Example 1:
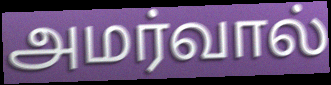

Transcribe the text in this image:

அமர்வால்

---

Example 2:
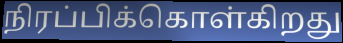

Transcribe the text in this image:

நிரப்பிக்கொள்கிறது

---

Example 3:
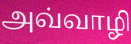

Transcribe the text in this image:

அவ்வாழி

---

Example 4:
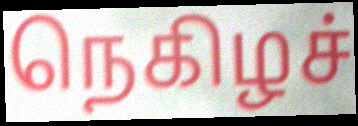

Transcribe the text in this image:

நெகிழச்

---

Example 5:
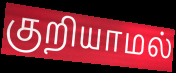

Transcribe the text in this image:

குறியாமல்